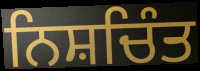
ਨਿਸ਼ਚਿੰਤ